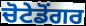
ਚੋਟੇਡੋਂਗਰ